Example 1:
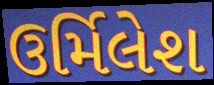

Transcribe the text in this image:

ઉર્મિલેશ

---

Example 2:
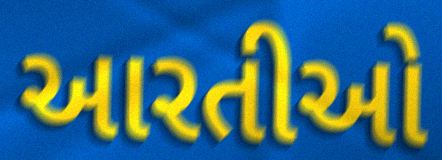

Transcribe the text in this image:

આરતીઓ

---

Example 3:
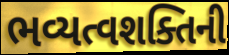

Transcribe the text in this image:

ભવ્યત્વશક્તિની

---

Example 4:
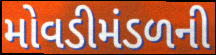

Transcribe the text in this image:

મોવડીમંડળની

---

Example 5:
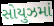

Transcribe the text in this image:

સોયુઝમાં